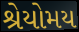
શ્રેયોમય